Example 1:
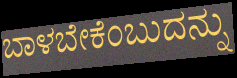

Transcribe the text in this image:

ಬಾಳಬೇಕೆಂಬುದನ್ನು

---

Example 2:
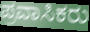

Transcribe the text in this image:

ಪ್ರವಾಸಿಕರು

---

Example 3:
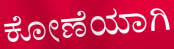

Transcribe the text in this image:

ಕೋಣೆಯಾಗಿ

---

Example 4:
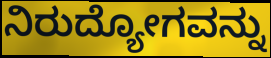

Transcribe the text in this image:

ನಿರುದ್ಯೋಗವನ್ನು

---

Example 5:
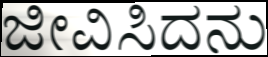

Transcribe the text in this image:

ಜೀವಿಸಿದನು